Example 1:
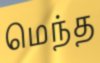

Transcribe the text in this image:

மெந்த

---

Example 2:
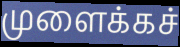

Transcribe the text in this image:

முளைக்கச்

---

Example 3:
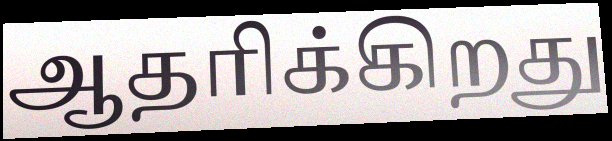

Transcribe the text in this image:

ஆதரிக்கிறது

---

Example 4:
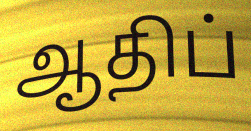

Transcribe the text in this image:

ஆதிப்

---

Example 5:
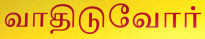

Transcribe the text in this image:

வாதிடுவோர்